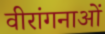
वीरांगनाओं